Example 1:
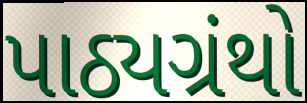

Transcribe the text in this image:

પાઠ્યગ્રંથો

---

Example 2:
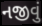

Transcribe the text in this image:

નજીવું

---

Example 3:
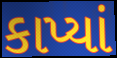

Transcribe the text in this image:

કાપ્યાં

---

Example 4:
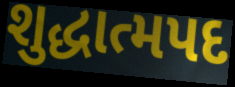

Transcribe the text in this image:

શુદ્ધાત્મપદ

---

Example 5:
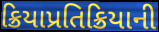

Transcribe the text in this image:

ક્રિયાપ્રતિક્રિયાની